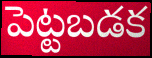
పెట్టబడక